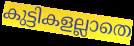
കുട്ടികളല്ലാതെ